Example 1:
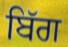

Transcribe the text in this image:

ਬਿੱਗ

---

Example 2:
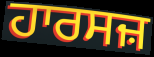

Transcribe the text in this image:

ਹਾਰਸਜ਼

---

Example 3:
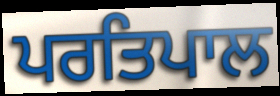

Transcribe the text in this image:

ਪਰਤਿਪਾਲ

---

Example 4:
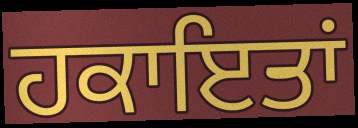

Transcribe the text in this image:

ਹਕਾਇਤਾਂ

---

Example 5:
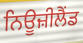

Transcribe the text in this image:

ਨਿਊਜ਼ੀਲੈੰਡ